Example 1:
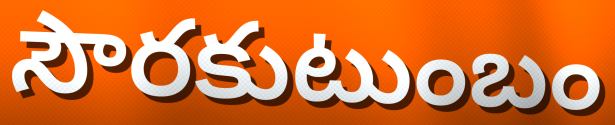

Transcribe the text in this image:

సౌరకుటుంబం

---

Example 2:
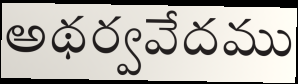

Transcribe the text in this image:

అథర్వవేదము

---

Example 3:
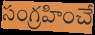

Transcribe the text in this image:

సంగ్రహించే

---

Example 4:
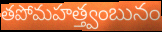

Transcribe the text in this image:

తపోమహత్త్వంబునం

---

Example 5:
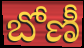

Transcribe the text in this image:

బోణీ